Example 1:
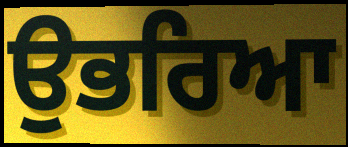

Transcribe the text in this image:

ਉਭਰਿਆ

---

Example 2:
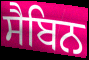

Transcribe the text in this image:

ਸੈਬਿਨ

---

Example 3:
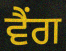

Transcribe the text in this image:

ਵੈਂਗ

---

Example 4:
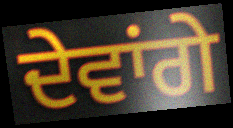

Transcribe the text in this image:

ਦੇਵਾਂਗੇ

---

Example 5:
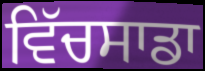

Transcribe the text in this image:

ਵਿੱਚਸਾਡਾ